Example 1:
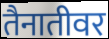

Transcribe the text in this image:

तैनातीवर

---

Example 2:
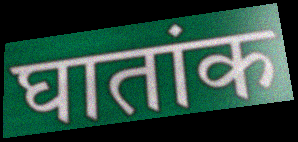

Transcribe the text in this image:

घातांक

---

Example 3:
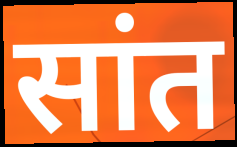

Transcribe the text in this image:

सांत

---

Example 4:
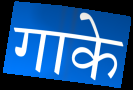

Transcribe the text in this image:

गाके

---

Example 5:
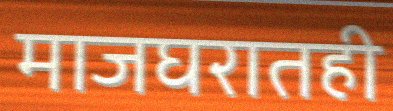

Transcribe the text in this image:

माजघरातही